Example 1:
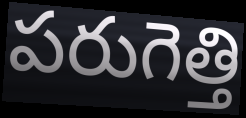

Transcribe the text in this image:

పరుగెత్తి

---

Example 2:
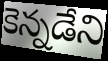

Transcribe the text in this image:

కెన్నడేని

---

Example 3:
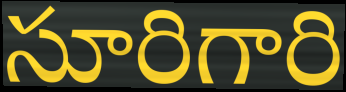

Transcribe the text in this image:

సూరిగారి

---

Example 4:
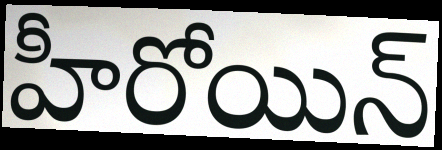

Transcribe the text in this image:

హీరోయిన్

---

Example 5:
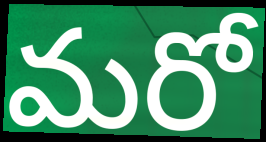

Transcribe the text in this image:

మరో